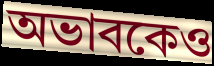
অভাবকেও